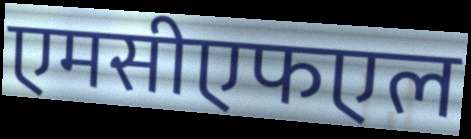
एमसीएफएल